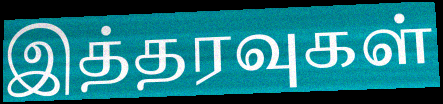
இத்தரவுகள்